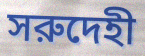
সরুদেহী